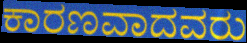
ಕಾರಣವಾದವರು